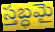
స్తబ్ధమై